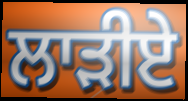
ਲਾੜੀਏ